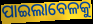
ପାଇଲାବେଳକୁ